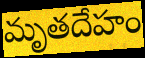
మృతదేహం